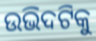
ଉଭିଦଟିକୁ